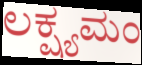
ಲಕ್ಷ್ಯಮಂ